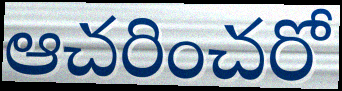
ఆచరించరో